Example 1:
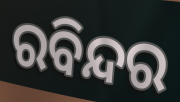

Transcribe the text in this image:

ରବିନ୍ଦର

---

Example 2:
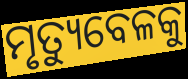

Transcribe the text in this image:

ମୃତ୍ୟୁବେଳକୁ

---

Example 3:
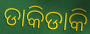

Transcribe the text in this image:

ଡାକିଡାକି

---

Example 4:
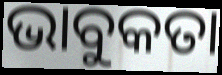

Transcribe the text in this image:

ଭାବୁକତା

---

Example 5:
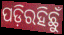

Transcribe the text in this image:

ପଡ଼ିରହିଛୁଁ